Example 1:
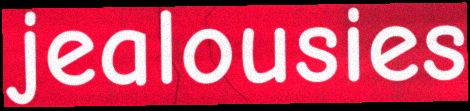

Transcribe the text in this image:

jealousies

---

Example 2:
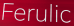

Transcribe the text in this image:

Ferulic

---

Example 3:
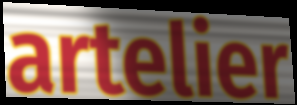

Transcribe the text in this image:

artelier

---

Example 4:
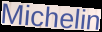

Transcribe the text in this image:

Michelin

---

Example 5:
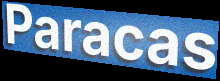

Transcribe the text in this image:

Paracas